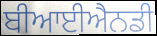
ਬੀਆਈਐਨਡੀ